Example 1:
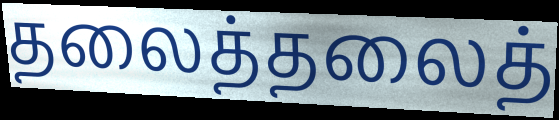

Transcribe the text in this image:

தலைத்தலைத்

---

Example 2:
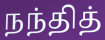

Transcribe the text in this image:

நந்தித்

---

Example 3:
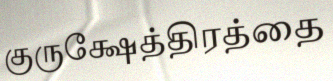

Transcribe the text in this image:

குருக்ஷேத்திரத்தை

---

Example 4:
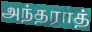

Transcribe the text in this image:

அந்தராத்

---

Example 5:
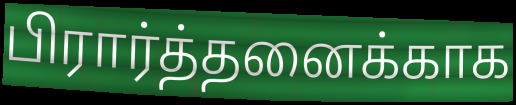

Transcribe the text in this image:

பிரார்த்தனைக்காக